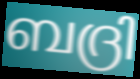
ബദ്രി